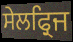
ਸੇਲਫ੍ਰਿਜ